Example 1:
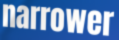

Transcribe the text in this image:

narrower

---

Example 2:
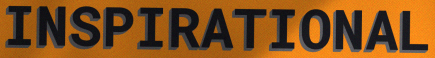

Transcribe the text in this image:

INSPIRATIONAL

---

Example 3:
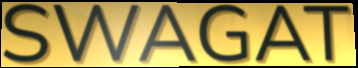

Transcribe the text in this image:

SWAGAT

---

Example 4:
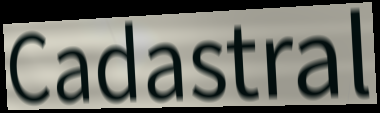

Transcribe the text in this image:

Cadastral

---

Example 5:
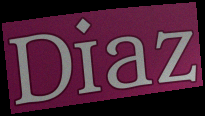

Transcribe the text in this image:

Diaz